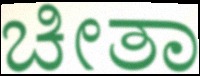
ಚೀತಾ